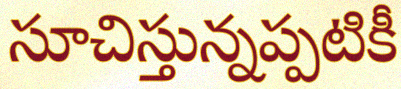
సూచిస్తున్నప్పటికీ